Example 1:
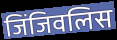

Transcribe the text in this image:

जिंजिवलिस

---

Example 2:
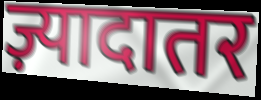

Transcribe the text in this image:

ज़्यादातर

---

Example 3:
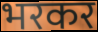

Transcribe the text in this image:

भरकर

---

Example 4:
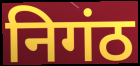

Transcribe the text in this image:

निगंठ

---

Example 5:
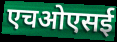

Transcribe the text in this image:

एचओएसई